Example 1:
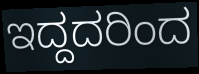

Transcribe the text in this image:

ಇದ್ದದರಿಂದ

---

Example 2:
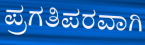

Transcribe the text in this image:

ಪ್ರಗತಿಪರವಾಗಿ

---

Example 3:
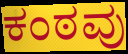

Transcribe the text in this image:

ಕಂಠವು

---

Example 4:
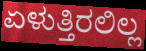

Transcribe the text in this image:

ಏಳುತ್ತಿರಲಿಲ್ಲ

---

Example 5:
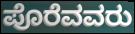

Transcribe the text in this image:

ಪೊರೆವವರು